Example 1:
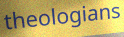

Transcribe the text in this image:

theologians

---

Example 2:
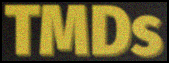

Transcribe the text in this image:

TMDs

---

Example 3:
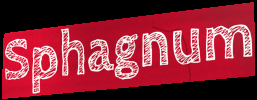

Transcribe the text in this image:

Sphagnum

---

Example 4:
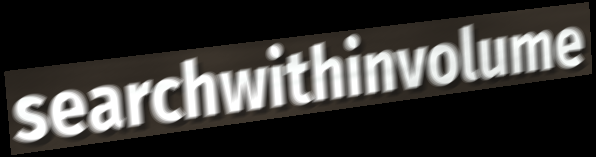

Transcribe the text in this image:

searchwithinvolume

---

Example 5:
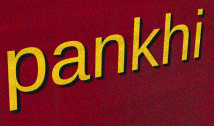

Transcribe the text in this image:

pankhi